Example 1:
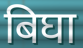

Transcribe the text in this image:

बिघा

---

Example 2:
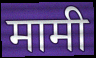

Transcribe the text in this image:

मामी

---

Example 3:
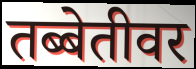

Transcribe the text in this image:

तब्बेतीवर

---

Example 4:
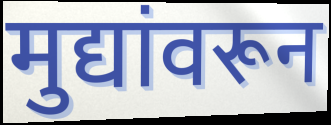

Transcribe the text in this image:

मुद्यांवरून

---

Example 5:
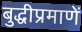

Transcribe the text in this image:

बुद्धीप्रमाणें